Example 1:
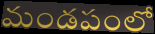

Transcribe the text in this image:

మండపంలో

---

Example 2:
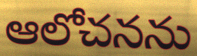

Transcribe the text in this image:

ఆలోచనను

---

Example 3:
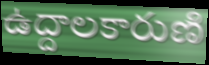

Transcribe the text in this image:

ఉద్దాలకారుణి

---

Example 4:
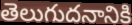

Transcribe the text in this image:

తెలుగుదనానికి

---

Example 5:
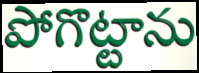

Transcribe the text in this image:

పోగొట్టాను